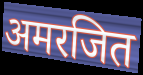
अमरजित